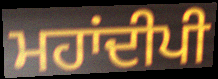
ਮਹਾਂਦੀਪੀ